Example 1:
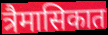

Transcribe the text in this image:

त्रैमासिकात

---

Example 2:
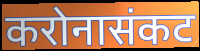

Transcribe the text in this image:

करोनासंकट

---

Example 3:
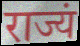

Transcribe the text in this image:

राज्यं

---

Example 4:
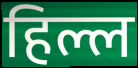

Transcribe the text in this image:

हिल्ल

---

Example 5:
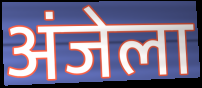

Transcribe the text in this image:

अंजेला